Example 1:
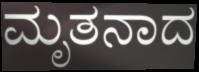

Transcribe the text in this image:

ಮೃತನಾದ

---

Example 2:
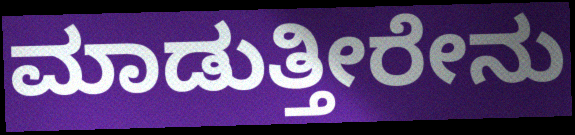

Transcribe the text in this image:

ಮಾಡುತ್ತೀರೇನು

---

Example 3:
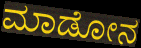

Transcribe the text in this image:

ಮಾಡೋನ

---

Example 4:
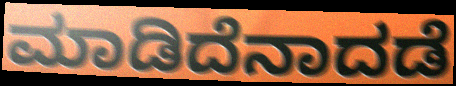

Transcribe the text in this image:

ಮಾಡಿದೆನಾದಡೆ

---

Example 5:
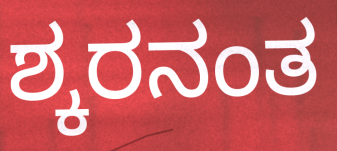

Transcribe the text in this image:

ಶ್ಕರನಂತ